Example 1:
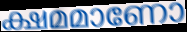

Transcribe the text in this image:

ക്ഷമമാണോ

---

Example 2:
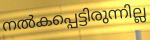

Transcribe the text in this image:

നൽകപ്പെട്ടിരുന്നില്ല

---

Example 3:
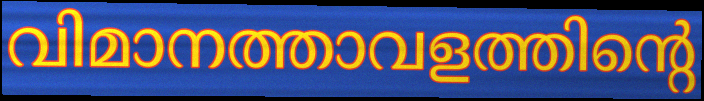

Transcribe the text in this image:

വിമാനത്താവളത്തിന്റെ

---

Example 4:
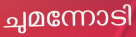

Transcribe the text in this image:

ചുമന്നോടി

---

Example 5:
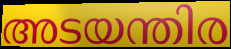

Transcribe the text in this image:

അടയന്തിര